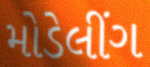
મોડેલીંગ